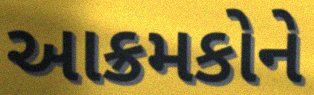
આક્રમકોને